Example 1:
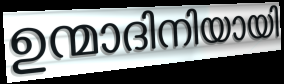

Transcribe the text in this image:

ഉന്മാദിനിയായി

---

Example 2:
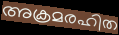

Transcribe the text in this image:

അക്രമരഹിത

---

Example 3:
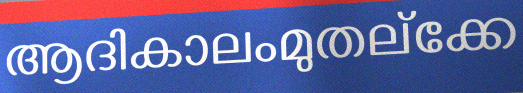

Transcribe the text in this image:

ആദികാലംമുതല്ക്കേ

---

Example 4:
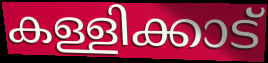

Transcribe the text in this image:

കള്ളിക്കാട്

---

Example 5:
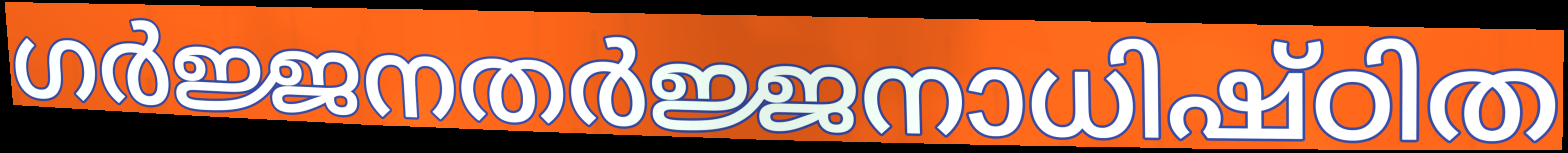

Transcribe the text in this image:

ഗർജ്ജനതർജ്ജനാധിഷ്ഠിത